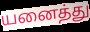
யனைத்து